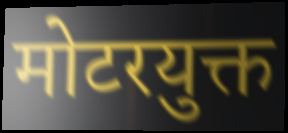
मोटरयुक्त